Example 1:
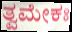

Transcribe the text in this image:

ತ್ವಮೇಕಃ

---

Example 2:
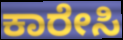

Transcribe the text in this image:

ಕಾರೇಸಿ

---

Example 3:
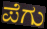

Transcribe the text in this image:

ಪೆಗು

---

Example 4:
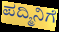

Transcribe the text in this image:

ಪದ್ಮಿನಿಗೆ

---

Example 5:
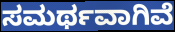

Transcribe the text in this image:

ಸಮರ್ಥವಾಗಿವೆ